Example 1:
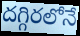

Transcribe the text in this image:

దగ్గిరలోనే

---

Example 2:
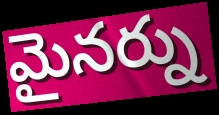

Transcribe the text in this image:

మైనర్ను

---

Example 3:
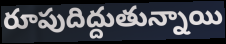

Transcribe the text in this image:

రూపుదిద్దుతున్నాయి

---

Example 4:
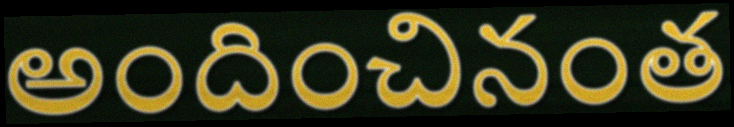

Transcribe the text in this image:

అందించినంత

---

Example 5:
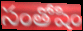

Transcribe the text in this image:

సంతోషిం